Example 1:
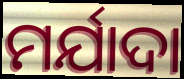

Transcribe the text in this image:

ମର୍ଯାଦା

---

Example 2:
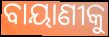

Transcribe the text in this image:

ବାୟାଣୀକୁ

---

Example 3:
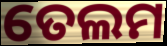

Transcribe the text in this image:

ତେଲମ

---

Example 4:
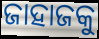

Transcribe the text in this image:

ଜାହାଜକୁ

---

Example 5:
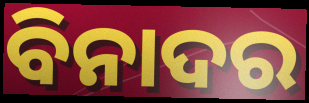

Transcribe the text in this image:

ବିନାଦର